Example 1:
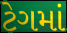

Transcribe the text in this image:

ટેગમાં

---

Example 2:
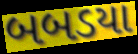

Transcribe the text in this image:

બબડયા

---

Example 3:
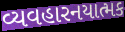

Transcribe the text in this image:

વ્યવહારનયાત્મક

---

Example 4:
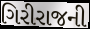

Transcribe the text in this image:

ગિરીરાજની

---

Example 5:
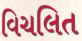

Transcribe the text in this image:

વિચલિત